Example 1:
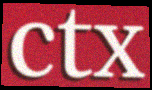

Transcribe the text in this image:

ctx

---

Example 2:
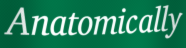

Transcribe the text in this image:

Anatomically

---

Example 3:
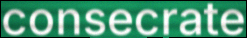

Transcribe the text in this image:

consecrate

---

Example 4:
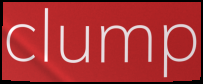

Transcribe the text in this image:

clump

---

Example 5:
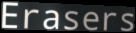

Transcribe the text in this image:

Erasers